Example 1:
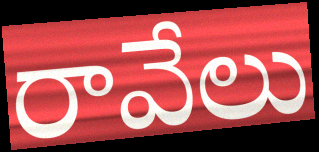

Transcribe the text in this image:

రావేలు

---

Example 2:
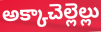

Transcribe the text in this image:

అక్కాచెల్లెల్లు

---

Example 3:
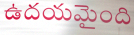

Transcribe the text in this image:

ఉదయమైంది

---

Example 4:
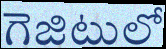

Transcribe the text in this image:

గెజిటులో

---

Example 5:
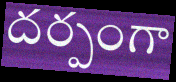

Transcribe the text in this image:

దర్పంగా